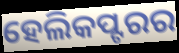
ହେଲିକପ୍ଟରର